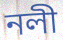
নলী